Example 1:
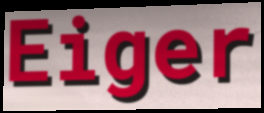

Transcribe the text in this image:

Eiger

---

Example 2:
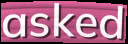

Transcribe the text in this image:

asked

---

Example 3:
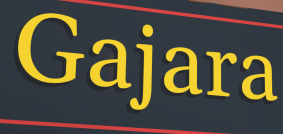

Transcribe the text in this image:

Gajara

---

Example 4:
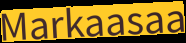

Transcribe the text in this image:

Markaasaa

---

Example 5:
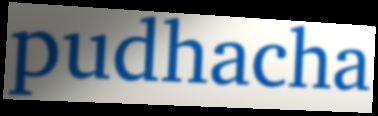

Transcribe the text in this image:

pudhacha